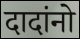
दादांनो